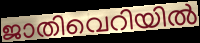
ജാതിവെറിയിൽ